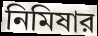
নিমিষার